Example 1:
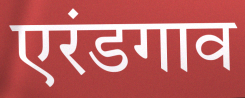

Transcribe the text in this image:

एरंडगाव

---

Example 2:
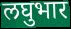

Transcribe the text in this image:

लघुभार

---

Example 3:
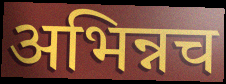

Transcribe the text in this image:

अभिन्नच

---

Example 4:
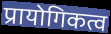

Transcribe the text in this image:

प्रायोगिकत्व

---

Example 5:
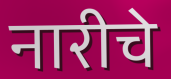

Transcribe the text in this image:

नारीचे